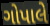
ગોપાલે